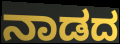
ನಾಡದ